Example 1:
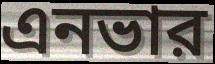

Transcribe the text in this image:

এনভার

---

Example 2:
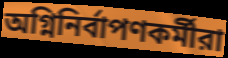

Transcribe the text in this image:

অগ্নিনির্বাপণকর্মীরা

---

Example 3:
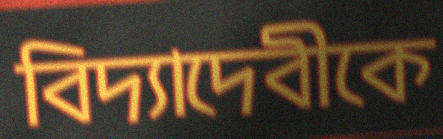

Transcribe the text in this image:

বিদ্যাদেবীকে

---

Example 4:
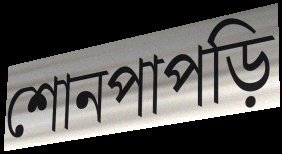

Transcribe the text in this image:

শোনপাপড়ি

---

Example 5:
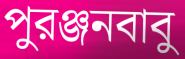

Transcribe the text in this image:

পুরঞ্জনবাবু